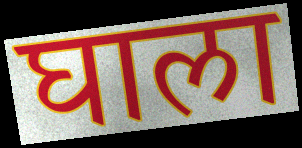
घाला